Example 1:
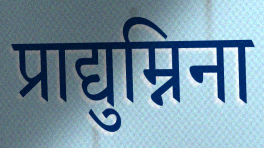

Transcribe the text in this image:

प्राद्युम्निना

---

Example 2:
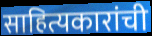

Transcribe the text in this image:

साहित्यकारांची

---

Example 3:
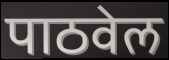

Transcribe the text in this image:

पाठवेल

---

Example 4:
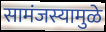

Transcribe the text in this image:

सामंजस्यामुळे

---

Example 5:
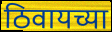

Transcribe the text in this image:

ठिवायच्या